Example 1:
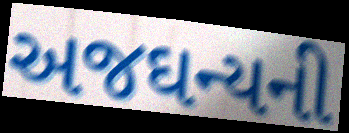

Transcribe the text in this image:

અજઘન્યની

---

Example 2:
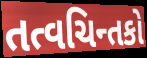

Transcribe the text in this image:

તત્વચિન્તકો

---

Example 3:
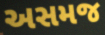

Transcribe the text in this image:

અસમજ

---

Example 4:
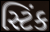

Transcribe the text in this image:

સ્ટિંક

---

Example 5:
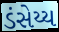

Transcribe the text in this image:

ડંસેય્ય